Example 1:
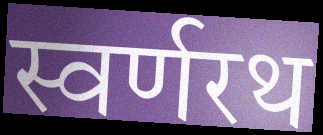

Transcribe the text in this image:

स्वर्णरथ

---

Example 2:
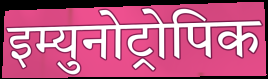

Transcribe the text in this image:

इम्युनोट्रोपिक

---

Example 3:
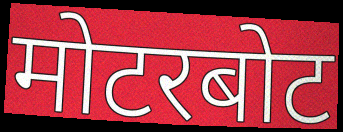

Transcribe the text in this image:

मोटरबोट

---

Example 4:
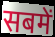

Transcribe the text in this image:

सबमें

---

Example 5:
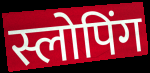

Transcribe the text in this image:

स्लोपिंग